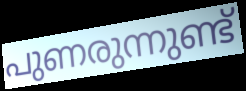
പുണരുന്നുണ്ട്